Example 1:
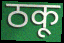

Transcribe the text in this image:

ठकू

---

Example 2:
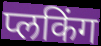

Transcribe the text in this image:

प्लकिंग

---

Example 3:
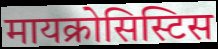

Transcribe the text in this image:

मायक्रोसिस्टिस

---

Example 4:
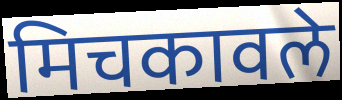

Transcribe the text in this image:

मिचकावले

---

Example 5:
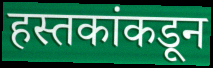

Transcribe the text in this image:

हस्तकांकडून